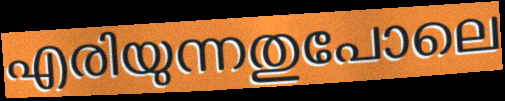
എരിയുന്നതുപോലെ